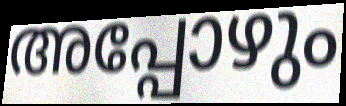
അപ്പോഴും